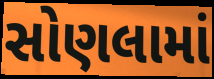
સોણલામાં